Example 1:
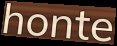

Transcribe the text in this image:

honte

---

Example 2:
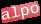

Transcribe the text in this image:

alpo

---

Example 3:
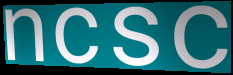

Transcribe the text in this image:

ncsc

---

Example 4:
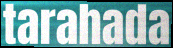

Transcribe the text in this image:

tarahada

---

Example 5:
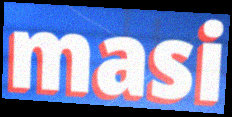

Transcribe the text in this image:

masi